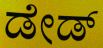
ಡೇಡ್